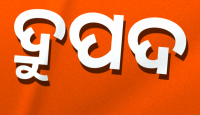
ଦ୍ରୁପଦ